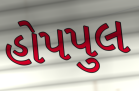
હોપપુલ